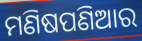
ମଣିଷପଣିଆର